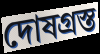
দোষগ্রস্ত